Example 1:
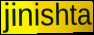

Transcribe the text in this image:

jinishta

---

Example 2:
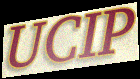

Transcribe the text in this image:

UCIP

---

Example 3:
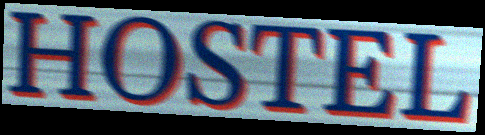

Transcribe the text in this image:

HOSTEL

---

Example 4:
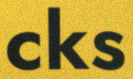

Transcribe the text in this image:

cks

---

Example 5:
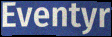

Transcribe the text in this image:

Eventyr